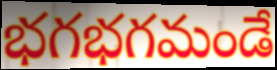
భగభగమండే